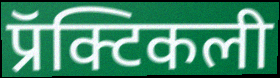
प्रॅक्टिकली